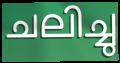
ചലിച്ചു